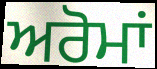
ਅਰੋਮਾਂ